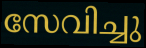
സേവിച്ചു